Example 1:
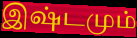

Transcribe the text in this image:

இஷ்டமும்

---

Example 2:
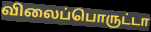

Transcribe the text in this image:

விலைப்பொருட்டா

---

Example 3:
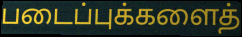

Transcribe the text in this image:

படைப்புக்களைத்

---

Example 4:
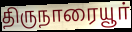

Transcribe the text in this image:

திருநாரையூர்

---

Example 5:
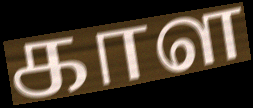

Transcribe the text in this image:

காள